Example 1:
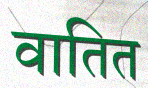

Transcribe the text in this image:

वातित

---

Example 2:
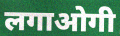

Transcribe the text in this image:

लगाओगी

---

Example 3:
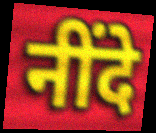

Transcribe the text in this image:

नींदे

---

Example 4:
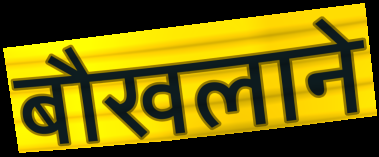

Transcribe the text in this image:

बौखलाने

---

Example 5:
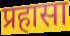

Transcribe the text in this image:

प्रहासा